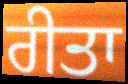
ਰੀਤਾ